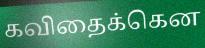
கவிதைக்கென